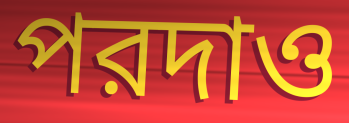
পরদাও